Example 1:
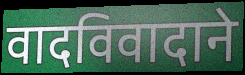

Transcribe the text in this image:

वादविवादाने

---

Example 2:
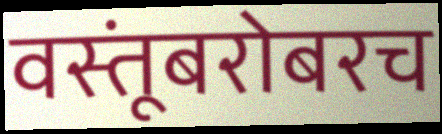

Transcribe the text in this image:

वस्तूंबरोबरच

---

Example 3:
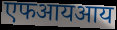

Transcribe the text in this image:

एफआयआय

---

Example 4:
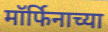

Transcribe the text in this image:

मॉर्फिनाच्या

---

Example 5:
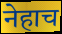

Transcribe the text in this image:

नेहाच